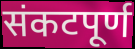
संकटपूर्ण